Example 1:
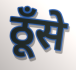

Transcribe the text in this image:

ठूँसे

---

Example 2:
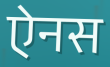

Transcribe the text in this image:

ऐनस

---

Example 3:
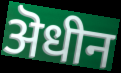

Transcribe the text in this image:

ऄधीन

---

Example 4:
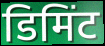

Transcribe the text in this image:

डिमिंट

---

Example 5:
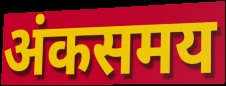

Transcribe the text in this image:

अंकसमय